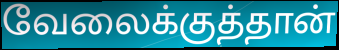
வேலைக்குத்தான்